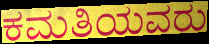
ಕಮತಿಯವರು